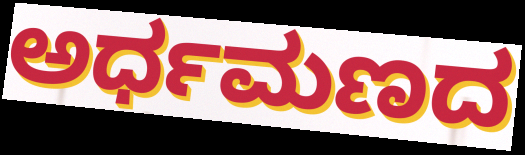
ಅರ್ಧಮಣದ